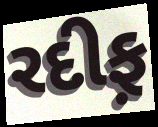
રદીફ઼